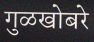
गुळखोबरे